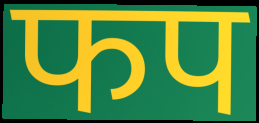
फप